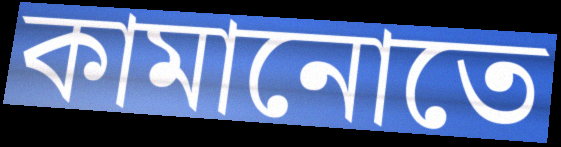
কামানোতে